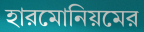
হারমোনিয়মের